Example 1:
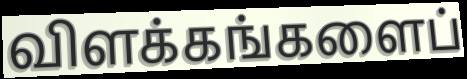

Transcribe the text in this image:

விளக்கங்களைப்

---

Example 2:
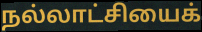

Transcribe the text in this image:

நல்லாட்சியைக்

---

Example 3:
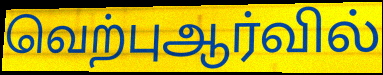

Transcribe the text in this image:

வெற்புஆர்வில்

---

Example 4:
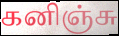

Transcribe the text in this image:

கனிஞ்சு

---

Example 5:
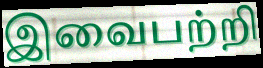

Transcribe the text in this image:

இவைபற்றி